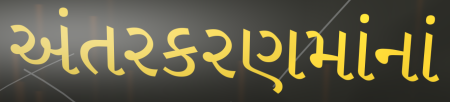
અંતરકરણમાંનાં